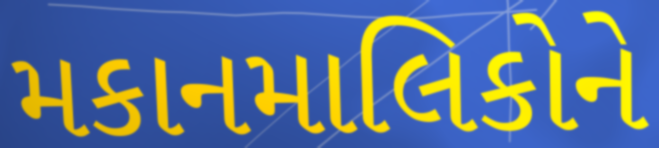
મકાનમાલિકોને